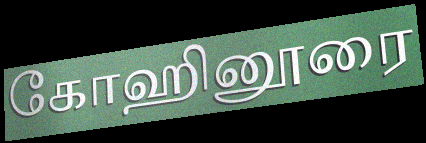
கோஹினூரை